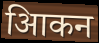
आिकन